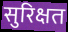
सुरिक्षत